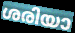
ശരിയാ